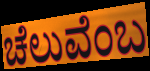
ಚೆಲುವೆಂಬ